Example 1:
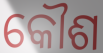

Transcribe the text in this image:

କୌଶ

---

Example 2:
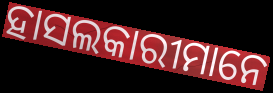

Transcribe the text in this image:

ହାସଲକାରୀମାନେ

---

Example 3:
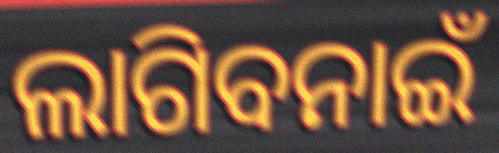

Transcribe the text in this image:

ଲାଗିବନାଇଁ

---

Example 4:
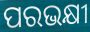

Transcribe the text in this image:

ପରଭକ୍ଷୀ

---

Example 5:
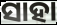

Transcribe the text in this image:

ସାହା